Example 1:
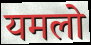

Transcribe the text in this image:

यमलो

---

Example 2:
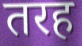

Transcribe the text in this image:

तरह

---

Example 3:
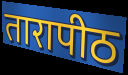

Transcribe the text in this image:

तारापीठ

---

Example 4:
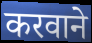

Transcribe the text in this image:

करवाने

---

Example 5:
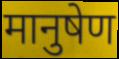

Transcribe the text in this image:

मानुषेण